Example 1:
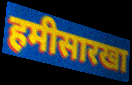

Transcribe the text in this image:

हमीसारखा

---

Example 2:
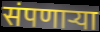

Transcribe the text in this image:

संपणार्‍या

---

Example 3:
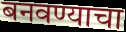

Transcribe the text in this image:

बनवण्याचा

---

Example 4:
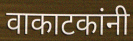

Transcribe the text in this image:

वाकाटकांनी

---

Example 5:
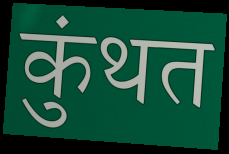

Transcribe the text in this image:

कुंथत